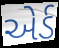
એર્ડ